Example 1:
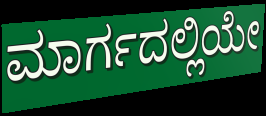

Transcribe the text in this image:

ಮಾರ್ಗದಲ್ಲಿಯೇ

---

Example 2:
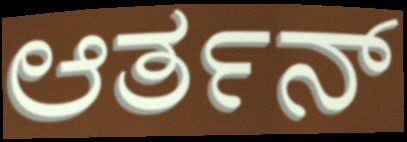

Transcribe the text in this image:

ಆರ್ತನ್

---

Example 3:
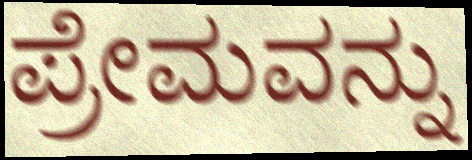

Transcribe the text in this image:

ಪ್ರೇಮವನ್ನು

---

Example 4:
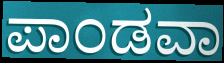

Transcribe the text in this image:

ಪಾಂಡವಾ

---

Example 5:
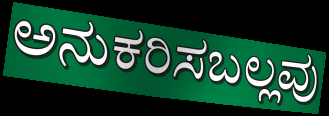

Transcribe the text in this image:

ಅನುಕರಿಸಬಲ್ಲವು